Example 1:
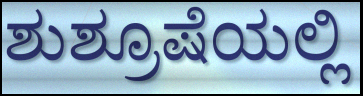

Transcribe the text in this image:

ಶುಶ್ರೂಷೆಯಲ್ಲಿ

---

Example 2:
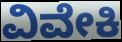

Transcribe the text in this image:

ವಿವೇಕಿ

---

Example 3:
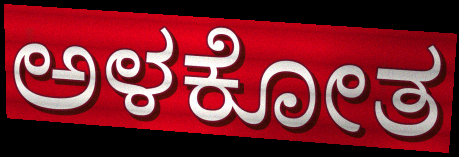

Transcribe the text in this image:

ಅಳಕೋತ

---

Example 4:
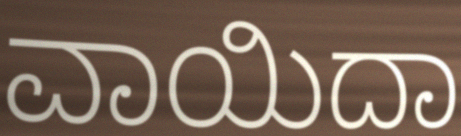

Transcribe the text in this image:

ವಾಯಿದಾ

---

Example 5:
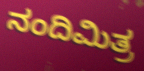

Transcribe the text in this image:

ನಂದಿಮಿತ್ರ